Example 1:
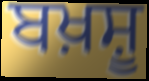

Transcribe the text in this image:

ਬਖ਼ਸ਼ੂ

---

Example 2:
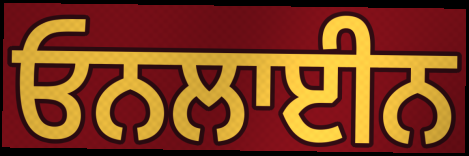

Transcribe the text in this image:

ਓਨਲਾਈਨ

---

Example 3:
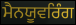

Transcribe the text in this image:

ਮੈਨਯੂਵਰਿੰਗ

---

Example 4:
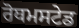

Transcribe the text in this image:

ਰੋਥਮਸਟੇਡ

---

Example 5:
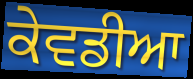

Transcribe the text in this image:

ਕੇਵਡੀਆ